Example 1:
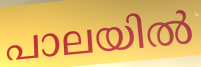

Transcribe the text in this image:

പാലയിൽ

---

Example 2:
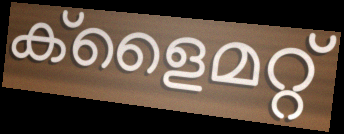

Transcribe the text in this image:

ക്ളൈമറ്റ്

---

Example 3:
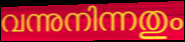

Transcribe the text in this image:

വന്നുനിന്നതും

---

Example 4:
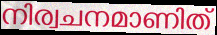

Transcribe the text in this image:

നിര്വചനമാണിത്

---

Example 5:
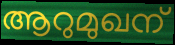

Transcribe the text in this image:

ആറുമുഖന്